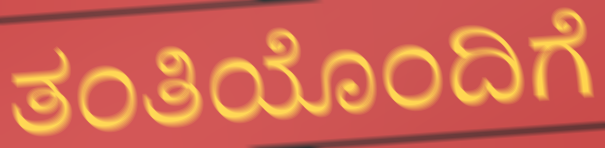
ತಂತಿಯೊಂದಿಗೆ